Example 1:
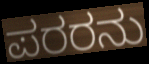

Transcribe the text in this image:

ಪರರನು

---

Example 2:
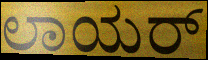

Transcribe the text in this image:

ಲಾಯರ್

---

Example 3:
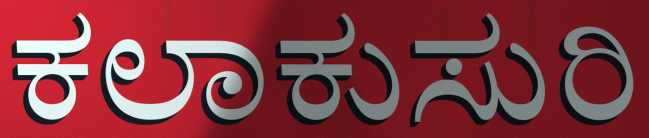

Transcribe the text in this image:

ಕಲಾಕುಸುರಿ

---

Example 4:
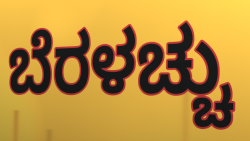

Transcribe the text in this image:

ಬೆರಳಚ್ಚು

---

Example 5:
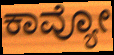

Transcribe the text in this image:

ಕಾವ್ಯೋ